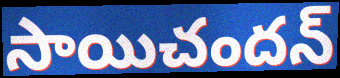
సాయిచందన్